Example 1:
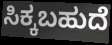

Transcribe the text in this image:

ಸಿಕ್ಕಬಹುದೆ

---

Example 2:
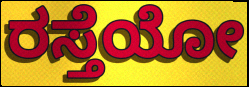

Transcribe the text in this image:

ರಸ್ತೆಯೋ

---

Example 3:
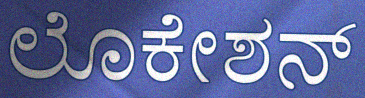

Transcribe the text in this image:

ಲೊಕೇಶನ್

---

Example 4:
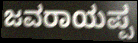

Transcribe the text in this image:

ಜವರಾಯಪ್ಪ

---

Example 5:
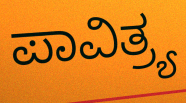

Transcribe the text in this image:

ಪಾವಿತ್ರ್ಯ